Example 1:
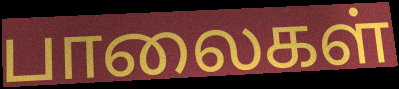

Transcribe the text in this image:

பாலைகள்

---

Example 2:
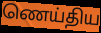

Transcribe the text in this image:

ணெய்திய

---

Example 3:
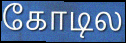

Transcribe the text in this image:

கோடில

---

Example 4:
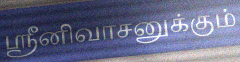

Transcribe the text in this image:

ஸ்ரீனிவாசனுக்கும்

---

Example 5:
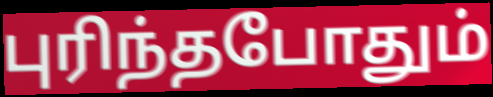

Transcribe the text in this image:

புரிந்தபோதும்